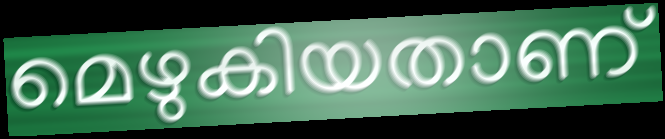
മെഴുകിയതാണ്